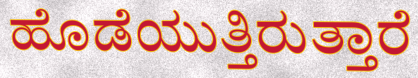
ಹೊಡೆಯುತ್ತಿರುತ್ತಾರೆ